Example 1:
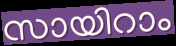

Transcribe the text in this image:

സായിറാം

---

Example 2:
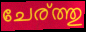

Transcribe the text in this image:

ചേര്ത്തു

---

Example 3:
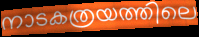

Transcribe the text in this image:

നാടകത്രയത്തിലെ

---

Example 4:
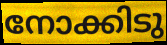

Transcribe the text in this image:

നോക്കിടു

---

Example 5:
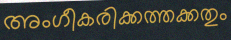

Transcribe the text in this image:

അംഗീകരിക്കത്തക്കതും